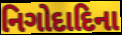
નિગોદાદિના